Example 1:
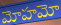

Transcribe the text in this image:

మోహమో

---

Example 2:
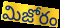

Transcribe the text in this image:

మిజోరం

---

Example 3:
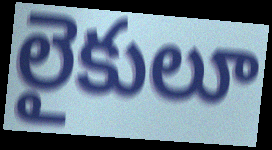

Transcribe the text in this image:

లైకులూ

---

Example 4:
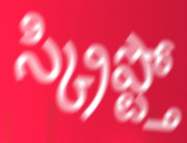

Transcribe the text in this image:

స్క్రిప్ట్తో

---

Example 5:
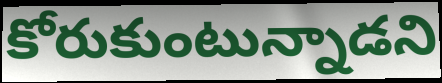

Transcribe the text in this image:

కోరుకుంటున్నాడని